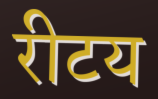
रीटय